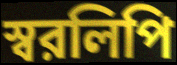
স্বরলিপি